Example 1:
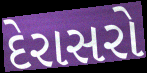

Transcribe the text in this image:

દેરાસરો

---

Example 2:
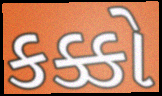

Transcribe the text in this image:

કક્કો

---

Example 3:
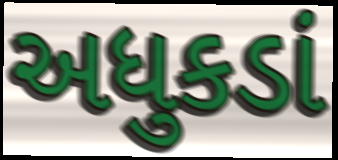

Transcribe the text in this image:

અધુકડાં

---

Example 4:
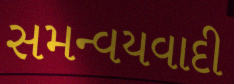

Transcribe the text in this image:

સમન્વયવાદી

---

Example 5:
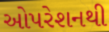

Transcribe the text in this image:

ઓપરેશનથી